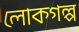
লোকগল্প